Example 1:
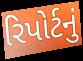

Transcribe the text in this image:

રિપોર્ટનું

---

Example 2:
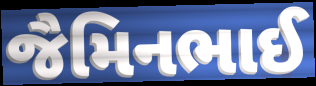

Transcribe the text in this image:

જૈમિનભાઈ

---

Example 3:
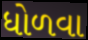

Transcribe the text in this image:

ધોળવા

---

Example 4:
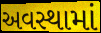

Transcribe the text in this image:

અવસ્થામાં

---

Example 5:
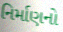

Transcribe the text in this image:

નિર્માણનો